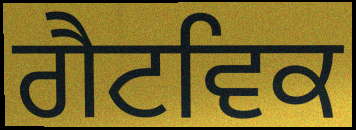
ਗੈਟਵਿਕ